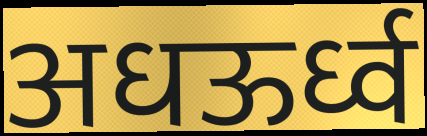
अधऊर्ध्व